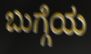
ಬುಗ್ಗೆಯ